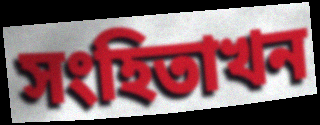
সংহিতাখন